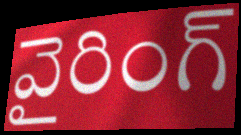
వైరింగ్